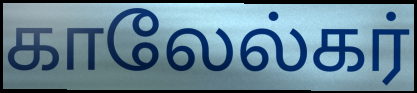
காலேல்கர்